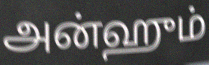
அன்ஹும்